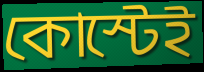
কোস্টেই